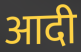
आदी